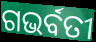
ଗଭର୍ବତୀ